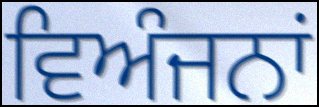
ਵਿਅੰਜਨਾਂ